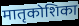
मातृकोशिका